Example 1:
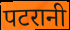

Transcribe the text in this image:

पटरानी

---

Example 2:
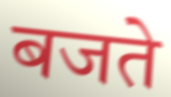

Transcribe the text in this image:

बजते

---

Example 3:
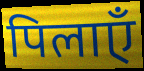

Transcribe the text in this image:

पिलाएँ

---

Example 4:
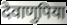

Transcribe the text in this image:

देवाणुपिया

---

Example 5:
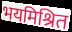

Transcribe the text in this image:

भयमिश्रित